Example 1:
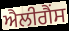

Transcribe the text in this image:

ਐਲੀਗੈਂਸ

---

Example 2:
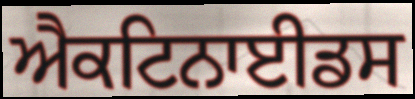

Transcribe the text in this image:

ਐਕਟਿਨਾਈਡਸ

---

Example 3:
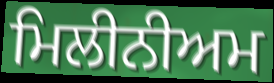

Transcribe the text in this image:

ਮਿਲੀਨੀਅਮ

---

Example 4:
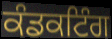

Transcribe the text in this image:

ਕੰਡਕਟਿੰਗ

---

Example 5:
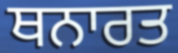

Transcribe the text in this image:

ਥਨਾਰਤ